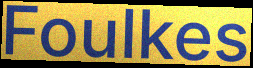
Foulkes